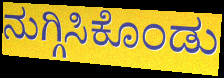
ನುಗ್ಗಿಸಿಕೊಂಡು